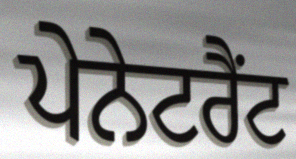
ਪੇਨੇਟਰੈਂਟ